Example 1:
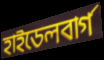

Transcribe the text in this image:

হাইডেলবার্গ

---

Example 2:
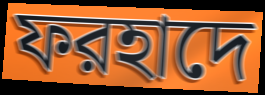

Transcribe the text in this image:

ফরহাদে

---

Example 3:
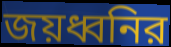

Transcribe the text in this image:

জয়ধ্বনির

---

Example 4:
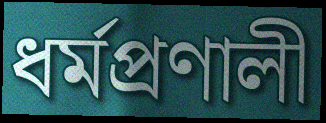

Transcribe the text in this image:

ধর্মপ্রণালী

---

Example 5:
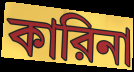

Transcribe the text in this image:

কারিনা